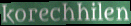
korechhilen